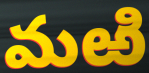
మఱి